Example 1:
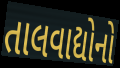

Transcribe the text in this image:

તાલવાદ્યોનો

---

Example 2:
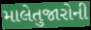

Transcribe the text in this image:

માલેતુજારોની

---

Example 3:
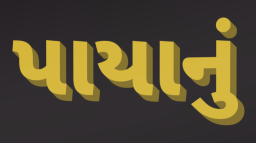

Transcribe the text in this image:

પાયાનું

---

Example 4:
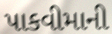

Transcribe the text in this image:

પાકવીમાની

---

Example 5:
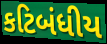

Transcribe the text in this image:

કટિબંધીય